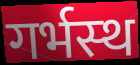
गर्भस्‍थ